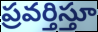
ప్రవర్తిస్తూ